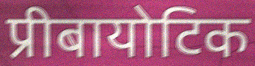
प्रीबायोटिक